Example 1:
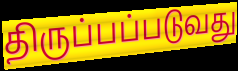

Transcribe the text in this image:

திருப்பப்படுவது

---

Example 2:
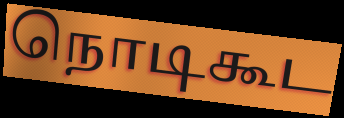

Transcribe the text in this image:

நொடிகூட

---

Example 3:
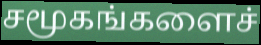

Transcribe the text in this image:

சமூகங்களைச்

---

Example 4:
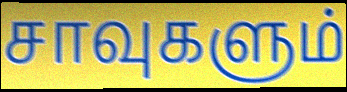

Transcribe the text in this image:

சாவுகளும்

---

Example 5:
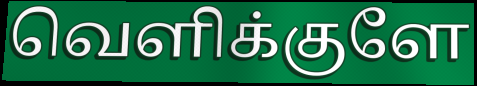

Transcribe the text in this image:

வெளிக்குளே